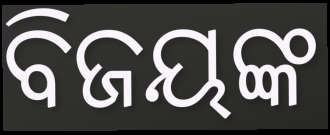
ବିଜୟଙ୍କ